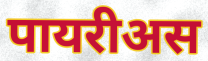
पायरीअस